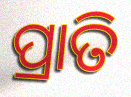
ପ୍ରାତି